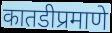
कातडीप्रमाणे